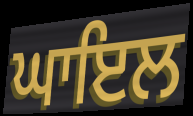
ਘਾਇਲ